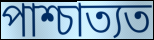
পাশ্চাত্যত